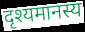
दृश्यमानस्य